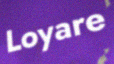
Loyare